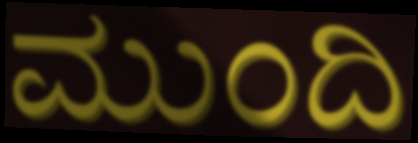
ಮುಂದಿ